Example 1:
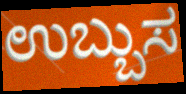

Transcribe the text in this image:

ಉಬ್ಬುಸ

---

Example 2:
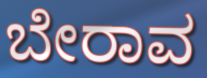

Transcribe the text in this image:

ಬೇರಾವ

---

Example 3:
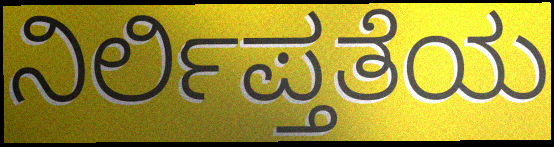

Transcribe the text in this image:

ನಿರ್ಲಿಪ್ತತೆಯ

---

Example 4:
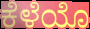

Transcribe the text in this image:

ಕೆಳೆಯೊ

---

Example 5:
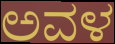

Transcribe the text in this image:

ಅವಳ